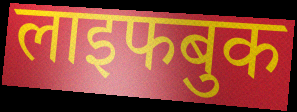
लाइफबुक